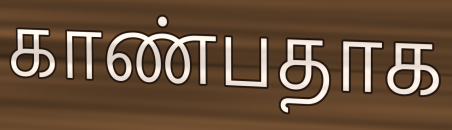
காண்பதாக